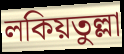
লকিয়তুল্লা